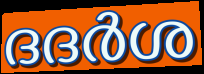
ദദർശ